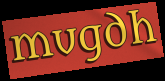
mugdh